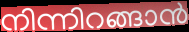
നിന്നിറങ്ങാൻ